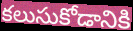
కలుసుకోడానికి